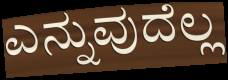
ಎನ್ನುವುದೆಲ್ಲ